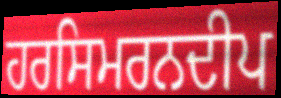
ਹਰਸਿਮਰਨਦੀਪ